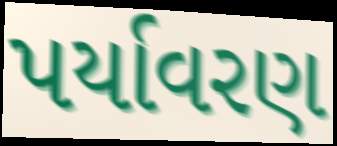
પર્યાવરણ